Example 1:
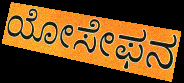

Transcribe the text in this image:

ಯೋಸೇಫನ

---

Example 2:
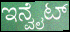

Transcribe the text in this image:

ಇನ್ವೈಟ್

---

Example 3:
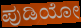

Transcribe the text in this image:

ಪುಡಿಯೋ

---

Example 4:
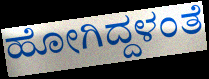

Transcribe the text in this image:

ಹೋಗಿದ್ದಳಂತೆ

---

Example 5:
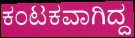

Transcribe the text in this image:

ಕಂಟಕವಾಗಿದ್ದ